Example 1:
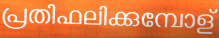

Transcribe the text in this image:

പ്രതിഫലിക്കുമ്പോള്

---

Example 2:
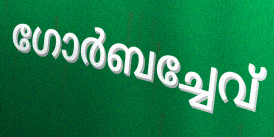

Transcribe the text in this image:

ഗോർബച്ചേവ്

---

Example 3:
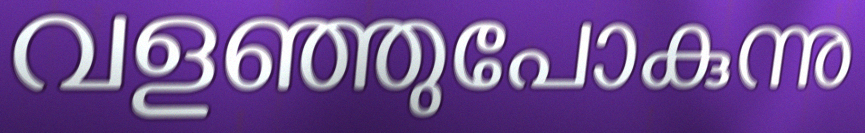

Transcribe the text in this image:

വളഞ്ഞുപോകുന്നു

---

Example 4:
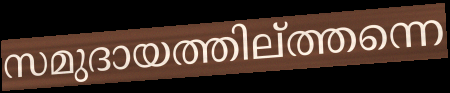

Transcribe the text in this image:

സമുദായത്തില്ത്തന്നെ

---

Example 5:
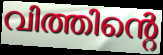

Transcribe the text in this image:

വിത്തിന്റെ